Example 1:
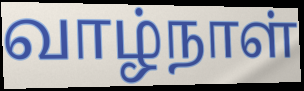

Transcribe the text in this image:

வாழ்நாள்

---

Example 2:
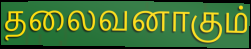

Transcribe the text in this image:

தலைவனாகும்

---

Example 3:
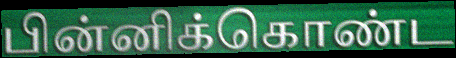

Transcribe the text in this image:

பின்னிக்கொண்ட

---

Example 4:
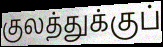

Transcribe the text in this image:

குலத்துக்குப்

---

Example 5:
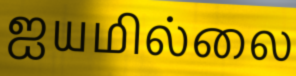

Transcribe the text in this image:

ஐயமில்லை